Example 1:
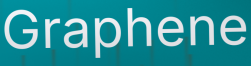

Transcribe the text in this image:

Graphene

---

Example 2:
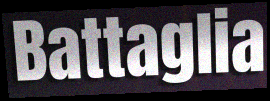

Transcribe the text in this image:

Battaglia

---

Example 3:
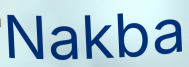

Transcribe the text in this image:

Nakba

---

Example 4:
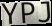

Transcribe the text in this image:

YPJ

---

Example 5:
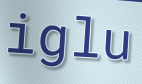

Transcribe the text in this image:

iglu